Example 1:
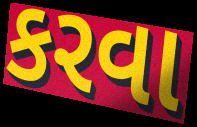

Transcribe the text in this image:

કરવા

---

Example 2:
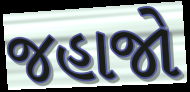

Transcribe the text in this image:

જહાજો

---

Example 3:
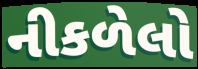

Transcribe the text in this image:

નીકળેલો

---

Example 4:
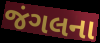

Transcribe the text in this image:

જંગલના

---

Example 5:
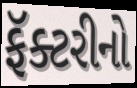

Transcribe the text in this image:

ફૅક્ટરીનો